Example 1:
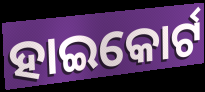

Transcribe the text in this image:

ହାଇକୋର୍ଟ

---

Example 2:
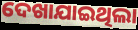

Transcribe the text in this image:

ଦେଖାଯାଇଥିଲା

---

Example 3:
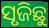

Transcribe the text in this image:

ସୃଜିଛୁ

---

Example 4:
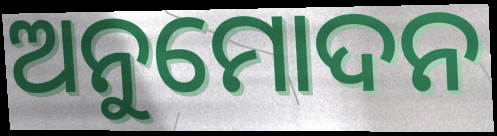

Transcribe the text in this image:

ଅନୁମୋଦନ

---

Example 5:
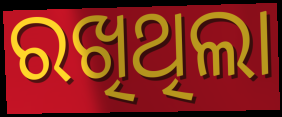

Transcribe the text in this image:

ରଖିଥିଲା